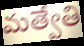
మత్వేతి